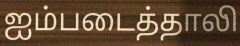
ஐம்படைத்தாலி